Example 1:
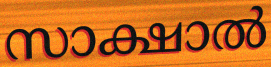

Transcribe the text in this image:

സാക്ഷാൽ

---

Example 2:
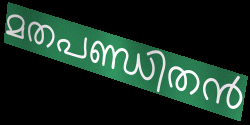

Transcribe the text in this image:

മതപണ്ഡിതൻ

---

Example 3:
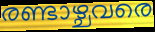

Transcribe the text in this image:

രണ്ടാഴ്ചവരെ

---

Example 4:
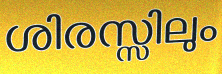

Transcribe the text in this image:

ശിരസ്സിലും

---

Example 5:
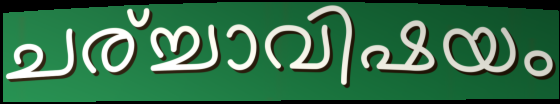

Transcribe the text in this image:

ചര്ച്ചാവിഷയം